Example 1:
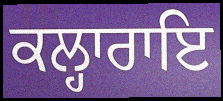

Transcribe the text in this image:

ਕਲ੍ਹਾਰਾਇ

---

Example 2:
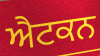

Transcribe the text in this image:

ਐਟਕਨ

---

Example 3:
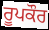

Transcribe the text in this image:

ਰੂਪਕੌਰ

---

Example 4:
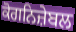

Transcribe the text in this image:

ਕੋਗਨਿਜ਼ੇਬਲ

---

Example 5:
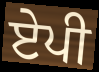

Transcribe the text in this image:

ਏਪੀ